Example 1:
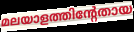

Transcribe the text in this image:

മലയാളത്തിന്റേതായ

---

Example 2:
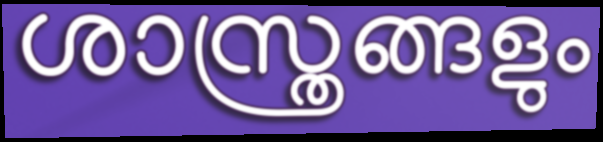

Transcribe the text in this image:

ശാസ്ത്രങ്ങളും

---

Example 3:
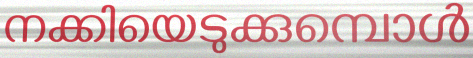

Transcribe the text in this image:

നക്കിയെടുക്കുമ്പൊൾ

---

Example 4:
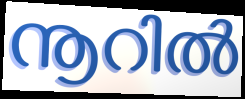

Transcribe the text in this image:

നൂറിൽ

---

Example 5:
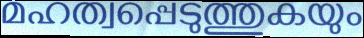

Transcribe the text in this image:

മഹത്വപ്പെടുത്തുകയും